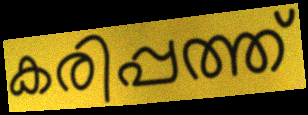
കരിപ്പത്ത്